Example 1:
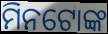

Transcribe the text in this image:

ମିନଟୋଙ୍କ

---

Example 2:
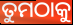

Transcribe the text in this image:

ତୁମଠାକୁ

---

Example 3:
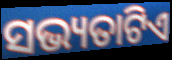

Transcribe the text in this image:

ସଭ୍ୟତାଟିଏ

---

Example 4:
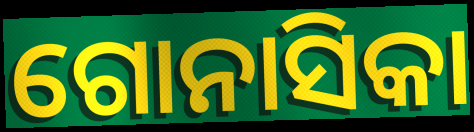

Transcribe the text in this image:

ଗୋନାସିକା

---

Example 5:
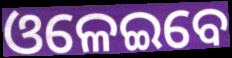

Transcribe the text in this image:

ଓଳେଇବେ